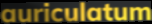
auriculatum